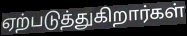
ஏற்படுத்துகிறார்கள்